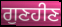
ਗੁਣਹੀਣ